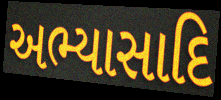
અભ્યાસાદિ